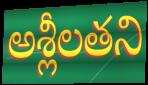
అశ్లీలతని